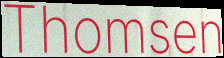
Thomsen